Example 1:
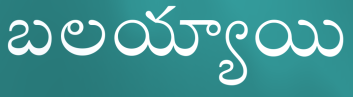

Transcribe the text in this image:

బలయ్యాయి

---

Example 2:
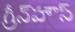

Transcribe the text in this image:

గ్రీన్‌హౌస్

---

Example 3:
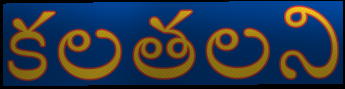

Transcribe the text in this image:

కలతలని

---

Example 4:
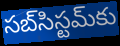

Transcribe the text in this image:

సబ్‌సిస్టమ్‌కు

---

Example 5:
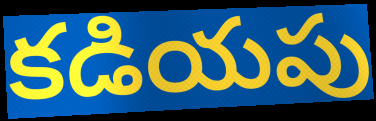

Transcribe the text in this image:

కడియపు